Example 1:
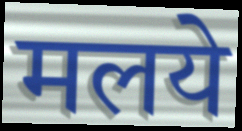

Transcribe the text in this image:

मलये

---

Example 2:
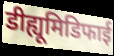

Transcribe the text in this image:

डीह्यूमिडिफाई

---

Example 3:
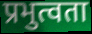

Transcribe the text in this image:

प्रभुत्वता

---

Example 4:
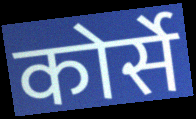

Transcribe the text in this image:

कोर्से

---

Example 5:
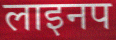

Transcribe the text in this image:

लाइनप